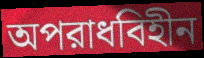
অপরাধবিহীন